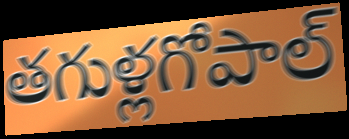
తగుళ్లగోపాల్